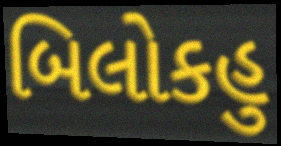
બિલોકહુ